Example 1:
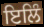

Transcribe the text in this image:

ਇਲਿੰ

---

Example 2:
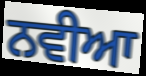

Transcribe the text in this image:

ਨਵੀਆ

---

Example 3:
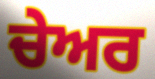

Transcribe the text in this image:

ਚੇਅਰ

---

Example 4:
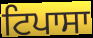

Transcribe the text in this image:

ਟਿਪਾਸਾ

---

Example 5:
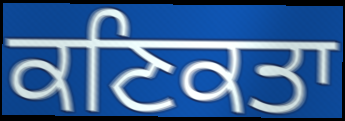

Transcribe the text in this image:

ਕਣਿਕਤਾ